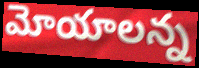
మోయాలన్న